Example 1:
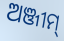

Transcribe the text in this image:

ଅଞ୍ଜୀମ୍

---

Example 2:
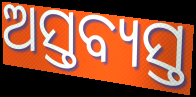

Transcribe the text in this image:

ଅସ୍ତବ୍ୟସ୍ତ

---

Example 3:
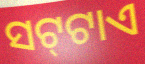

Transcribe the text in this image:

ସଟ୍‍ଟାଏ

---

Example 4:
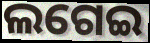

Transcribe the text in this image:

ଲଗେଇ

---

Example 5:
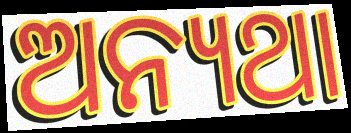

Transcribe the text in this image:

ଅନ୍ୟଥା